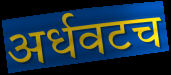
अर्धवटच